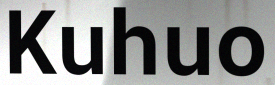
Kuhuo